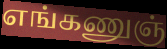
எங்கணுஞ்